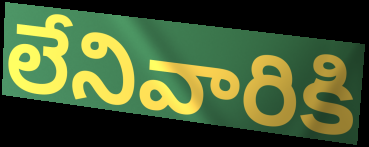
లేనివారికి